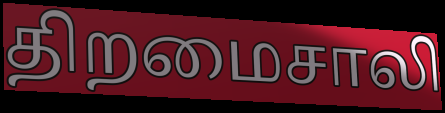
திறமைசாலி